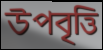
উপবৃত্তি